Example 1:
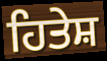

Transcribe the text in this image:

ਹਿਤੇਸ਼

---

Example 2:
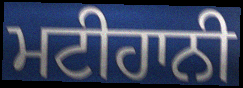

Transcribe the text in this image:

ਮਟੀਹਾਨੀ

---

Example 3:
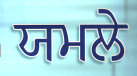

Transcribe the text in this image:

ਯਮਲੇ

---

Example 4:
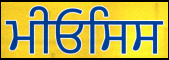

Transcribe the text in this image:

ਮੀਓਸਿਸ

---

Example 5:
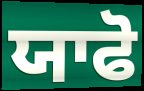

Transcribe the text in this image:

ਯਾਫੋ